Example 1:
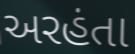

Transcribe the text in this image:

અરહંતા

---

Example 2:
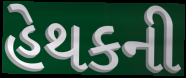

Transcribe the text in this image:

હેથકની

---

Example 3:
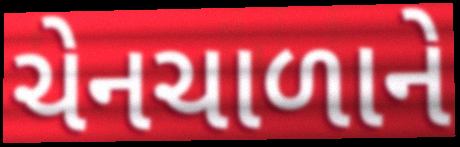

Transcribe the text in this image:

ચેનચાળાને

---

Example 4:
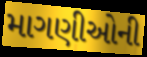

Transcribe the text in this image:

માગણીઓની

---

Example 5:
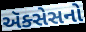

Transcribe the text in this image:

ઍક્સેસનો